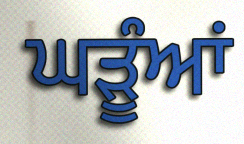
ਘੜੂੰਆਂ